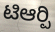
ಟಿಆರ್‍ಪಿ